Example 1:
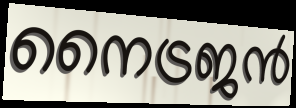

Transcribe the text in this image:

നൈട്രജൻ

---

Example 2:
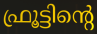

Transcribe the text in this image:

ഫ്രൂട്ടിന്റെ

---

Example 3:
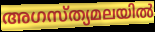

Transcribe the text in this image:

അഗസ്ത്യമലയിൽ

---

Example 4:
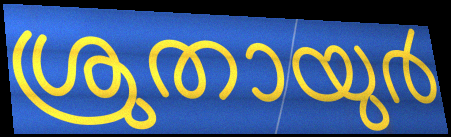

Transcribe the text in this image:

ശ്രുതായുർ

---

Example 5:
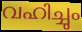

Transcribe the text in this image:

വഹിച്ചും